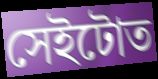
সেইটোত